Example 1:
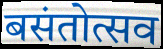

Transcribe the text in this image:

बसंतोत्सव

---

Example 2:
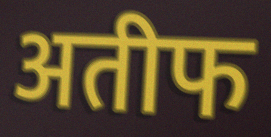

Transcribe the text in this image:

अतीफ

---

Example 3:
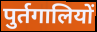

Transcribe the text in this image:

पुर्तगालियों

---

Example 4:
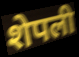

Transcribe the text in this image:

शेपली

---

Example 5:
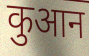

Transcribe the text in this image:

कुआन